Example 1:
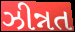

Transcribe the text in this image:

ઝીન્નત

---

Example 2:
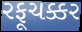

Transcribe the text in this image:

રફૂચક્કર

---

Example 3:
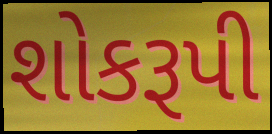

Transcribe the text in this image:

શોકરૂપી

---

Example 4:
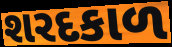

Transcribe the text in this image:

શરદકાળ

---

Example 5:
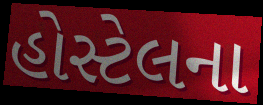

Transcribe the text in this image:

હોસ્ટેલના